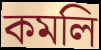
কমলি